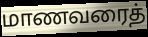
மாணவரைத்